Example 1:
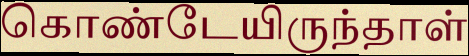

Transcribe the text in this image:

கொண்டேயிருந்தாள்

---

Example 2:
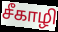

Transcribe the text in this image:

சீகாழி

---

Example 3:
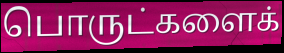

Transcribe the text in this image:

பொருட்களைக்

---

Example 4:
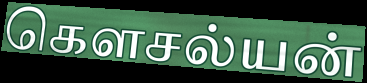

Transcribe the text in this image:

கௌசல்யன்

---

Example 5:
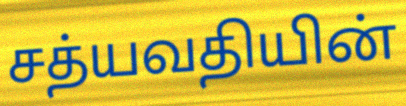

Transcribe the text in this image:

சத்யவதியின்